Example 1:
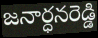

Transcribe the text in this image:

జనార్ధనరెడ్డి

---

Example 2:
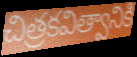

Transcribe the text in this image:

చిత్రకవిత్వానికి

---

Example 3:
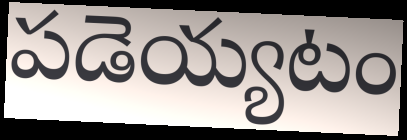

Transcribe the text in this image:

పడెయ్యటం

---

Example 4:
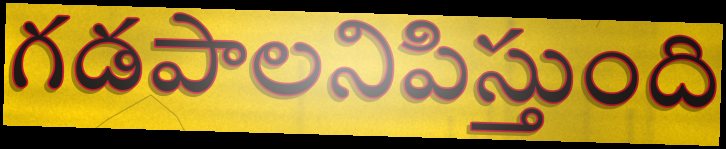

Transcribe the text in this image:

గడపాలనిపిస్తుంది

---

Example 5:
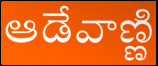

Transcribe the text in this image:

ఆడేవాణ్ణి